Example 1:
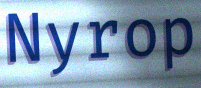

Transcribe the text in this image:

Nyrop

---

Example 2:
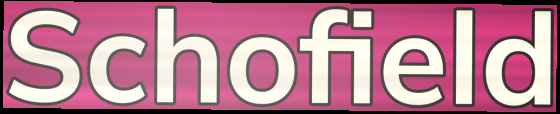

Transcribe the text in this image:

Schofield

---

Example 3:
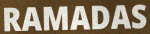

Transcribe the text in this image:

RAMADAS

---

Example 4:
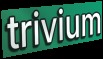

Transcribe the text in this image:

trivium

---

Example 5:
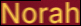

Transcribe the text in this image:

Norah